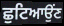
ਛੁਟਿਆਉਂਣ